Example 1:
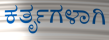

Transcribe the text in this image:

ಕರ್ತೃಗಳಾಗಿ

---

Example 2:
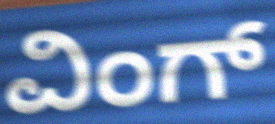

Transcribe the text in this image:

ವಿಂಗ್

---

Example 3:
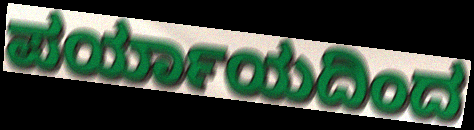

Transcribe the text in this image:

ಪರ್ಯಾಯದಿಂದ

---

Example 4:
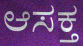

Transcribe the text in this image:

ಆಸಕ್ತ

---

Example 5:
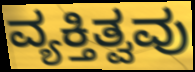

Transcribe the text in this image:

ವ್ಯಕ್ತಿತ್ವವು